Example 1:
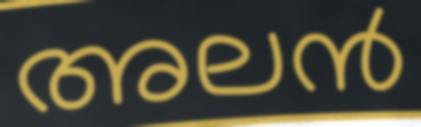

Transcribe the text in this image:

അലൻ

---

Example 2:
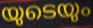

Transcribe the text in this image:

യുടെയും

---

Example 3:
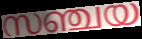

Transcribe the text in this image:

സഞ്ചയ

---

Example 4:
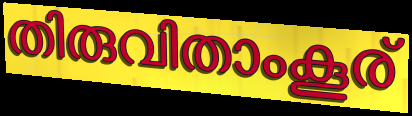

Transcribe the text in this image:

തിരുവിതാംകൂര്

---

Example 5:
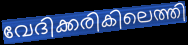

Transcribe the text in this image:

വേദിക്കരികിലെത്തി